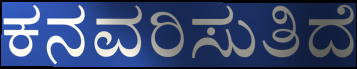
ಕನವರಿಸುತಿದೆ